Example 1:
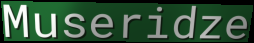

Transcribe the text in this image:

Museridze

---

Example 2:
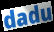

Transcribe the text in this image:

dadu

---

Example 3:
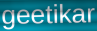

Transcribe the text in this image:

geetikar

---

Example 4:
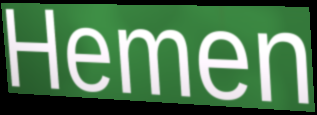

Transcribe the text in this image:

Hemen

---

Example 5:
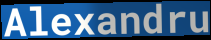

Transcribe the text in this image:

Alexandru